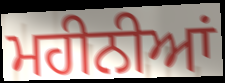
ਮਹੀਨੀਆਂ